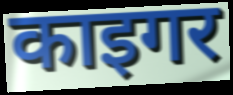
काइगर